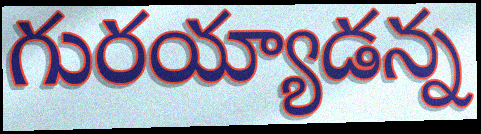
గురయ్యాడన్న